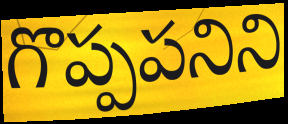
గొప్పపనిని